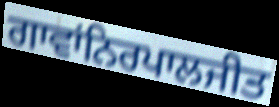
ਗਾਵਾਂਨਿਰਪਾਲਜੀਤ